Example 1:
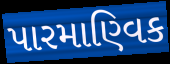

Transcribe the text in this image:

પારમાણ્વિક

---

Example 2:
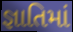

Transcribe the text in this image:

જ્ઞાતિમાં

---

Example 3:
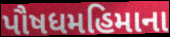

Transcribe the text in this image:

પૌષધમહિમાના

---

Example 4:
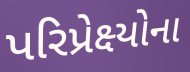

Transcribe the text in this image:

પરિપ્રેક્ષ્યોના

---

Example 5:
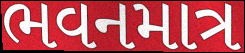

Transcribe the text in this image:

ભવનમાત્ર